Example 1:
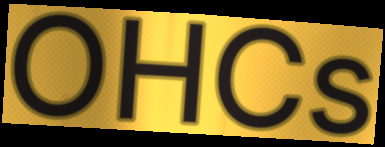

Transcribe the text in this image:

OHCs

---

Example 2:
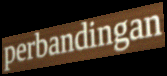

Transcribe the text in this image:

perbandingan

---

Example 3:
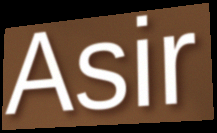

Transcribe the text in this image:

Asir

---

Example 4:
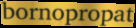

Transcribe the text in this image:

bornopropat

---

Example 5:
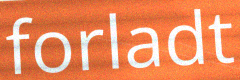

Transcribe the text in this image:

forladt